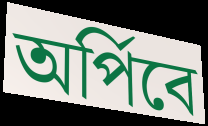
অর্পিবে